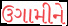
ઉગામીને